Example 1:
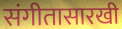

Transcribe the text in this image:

संगीतासारखी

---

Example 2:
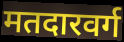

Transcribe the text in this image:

मतदारवर्ग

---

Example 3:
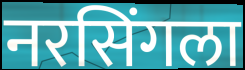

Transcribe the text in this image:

नरसिंगला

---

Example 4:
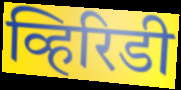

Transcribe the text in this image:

व्हिरिडी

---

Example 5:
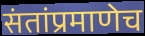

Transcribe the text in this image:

संतांप्रमाणेच